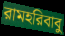
রামহরিবাবু